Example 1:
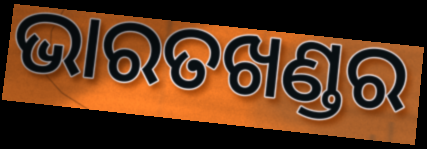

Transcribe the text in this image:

ଭାରତଖଣ୍ଡର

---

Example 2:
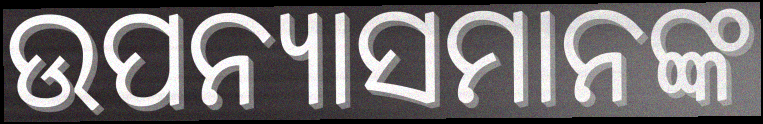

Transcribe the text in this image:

ଉପନ୍ୟାସମାନଙ୍କ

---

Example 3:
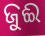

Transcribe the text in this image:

ଜୁଈ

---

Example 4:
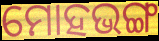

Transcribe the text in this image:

ମୋହଭଙ୍ଗ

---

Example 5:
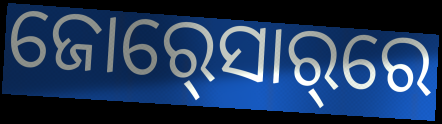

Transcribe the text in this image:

ଜୋର୍‍ସୋର୍‌ରେ